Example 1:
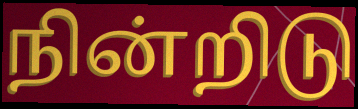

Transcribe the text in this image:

நின்றிடு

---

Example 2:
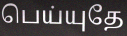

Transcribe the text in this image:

பெய்யுதே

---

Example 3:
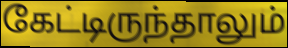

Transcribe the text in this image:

கேட்டிருந்தாலும்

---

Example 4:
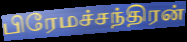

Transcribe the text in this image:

பிரேமச்சந்திரன்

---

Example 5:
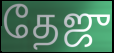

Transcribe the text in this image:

தேஜு